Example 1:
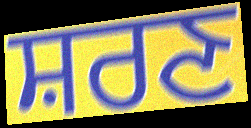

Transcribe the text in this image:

ਸ਼ਰਣ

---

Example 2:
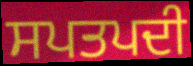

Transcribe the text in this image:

ਸਪਤਪਦੀ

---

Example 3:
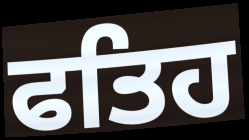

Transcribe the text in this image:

ਫਤਿਹ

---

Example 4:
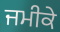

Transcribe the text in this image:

ਜਮੀਕੇ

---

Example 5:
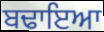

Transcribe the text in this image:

ਬਢਾਇਆ